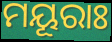
ମୟୂରାଃ